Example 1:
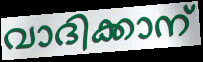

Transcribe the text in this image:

വാദിക്കാന്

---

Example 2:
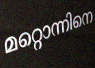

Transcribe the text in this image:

മറ്റൊന്നിനെ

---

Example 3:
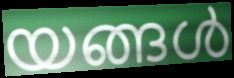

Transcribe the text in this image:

യങ്ങൾ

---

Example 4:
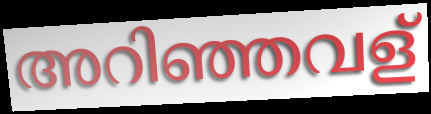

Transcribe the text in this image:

അറിഞ്ഞവള്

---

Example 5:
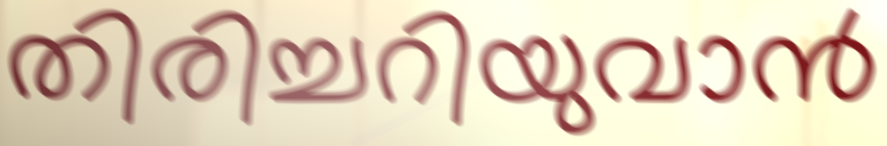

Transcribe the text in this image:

തിരിച്ചറിയുവാൻ